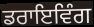
ਡਰਾਇਵਿੰਗ